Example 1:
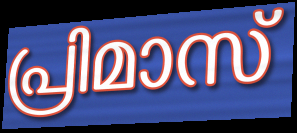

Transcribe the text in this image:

പ്രിമാസ്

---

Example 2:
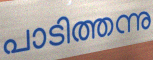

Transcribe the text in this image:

പാടിത്തന്നു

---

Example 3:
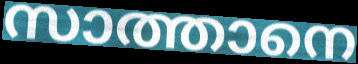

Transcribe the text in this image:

സാത്താനെ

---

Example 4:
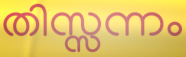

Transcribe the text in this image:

തിസ്സന്നം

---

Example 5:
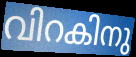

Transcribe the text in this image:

വിറകിനു